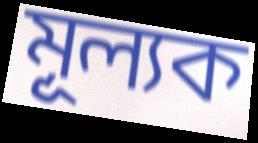
মূল্যক